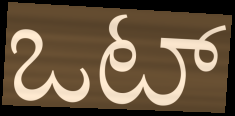
ಒಟ್